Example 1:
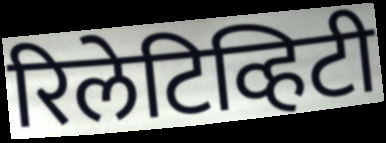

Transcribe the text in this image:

रिलेटिव्हिटी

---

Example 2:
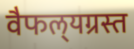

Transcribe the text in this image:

वैफल्यग्रस्त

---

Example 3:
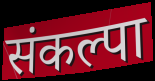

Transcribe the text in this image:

संकल्पा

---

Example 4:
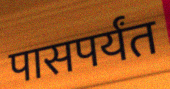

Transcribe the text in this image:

पासपर्यंत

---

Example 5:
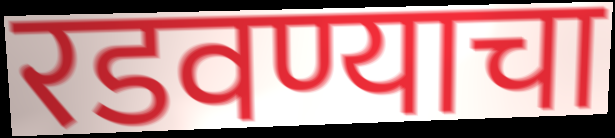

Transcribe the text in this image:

रडवण्याचा